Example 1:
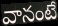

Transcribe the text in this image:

వానంటే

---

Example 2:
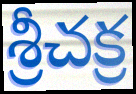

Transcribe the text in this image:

శ్రీచక్ర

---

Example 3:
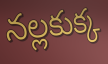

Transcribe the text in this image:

నల్లకుక్క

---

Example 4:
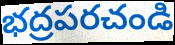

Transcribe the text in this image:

భద్రపరచండి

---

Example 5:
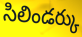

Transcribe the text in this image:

సిలిండర్కు